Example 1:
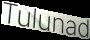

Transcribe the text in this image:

Tulunad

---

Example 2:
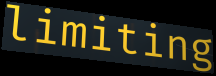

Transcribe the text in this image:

limiting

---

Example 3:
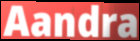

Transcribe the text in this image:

Aandra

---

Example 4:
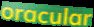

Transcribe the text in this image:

oracular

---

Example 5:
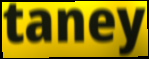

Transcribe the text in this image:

taney